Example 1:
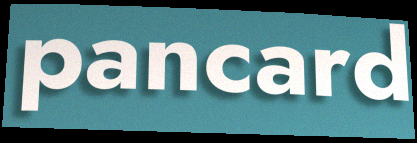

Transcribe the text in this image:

pancard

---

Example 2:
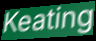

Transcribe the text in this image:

Keating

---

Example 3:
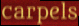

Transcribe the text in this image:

carpels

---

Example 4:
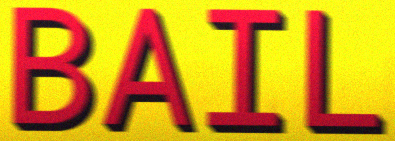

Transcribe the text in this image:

BAIL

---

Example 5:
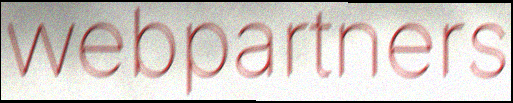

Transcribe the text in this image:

webpartners